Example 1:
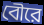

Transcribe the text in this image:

বৌরে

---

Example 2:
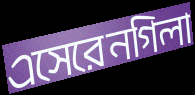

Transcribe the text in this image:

এসেরেনগিলা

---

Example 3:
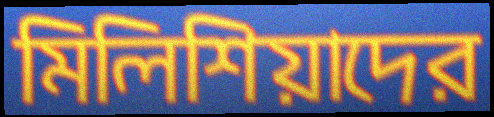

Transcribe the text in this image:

মিলিশিয়াদের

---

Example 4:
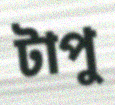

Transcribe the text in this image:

টাপু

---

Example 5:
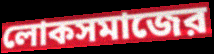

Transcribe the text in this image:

লোকসমাজের